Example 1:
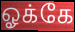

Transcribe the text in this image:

ஓக்கே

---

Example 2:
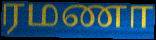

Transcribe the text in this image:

ரமணா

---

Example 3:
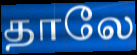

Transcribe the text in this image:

தாலே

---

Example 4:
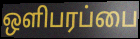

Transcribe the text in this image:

ஒளிபரப்பை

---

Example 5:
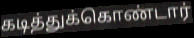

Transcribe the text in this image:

கடித்துக்கொண்டார்